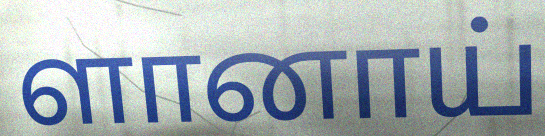
ளானாய்